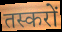
तस्करों